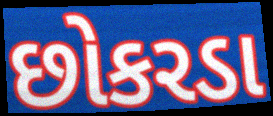
છોકરડા